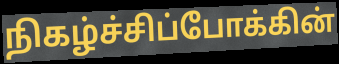
நிகழ்ச்சிப்போக்கின்